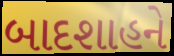
બાદશાહને